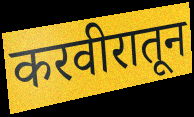
करवीरातून